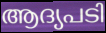
ആദ്യപടി